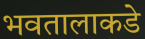
भवतालाकडे